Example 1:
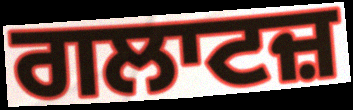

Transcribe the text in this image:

ਗਲਾਟਜ਼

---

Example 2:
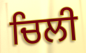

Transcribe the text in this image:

ਚਿਲੀ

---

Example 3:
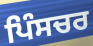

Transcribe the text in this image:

ਪਿੰਸਚਰ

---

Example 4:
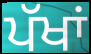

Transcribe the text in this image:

ਪੱਖਾਂ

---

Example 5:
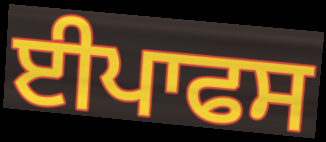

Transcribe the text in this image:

ਈਪਾਫਸ